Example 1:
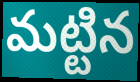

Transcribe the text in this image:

మట్టిన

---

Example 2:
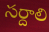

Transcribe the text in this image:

సర్దాలి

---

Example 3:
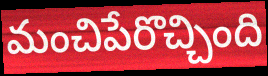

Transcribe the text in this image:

మంచిపేరొచ్చింది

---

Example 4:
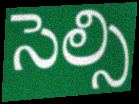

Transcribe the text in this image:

సెల్సి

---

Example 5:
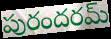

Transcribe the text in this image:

పురందరమ్